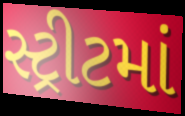
સ્ટ્રીટમાં